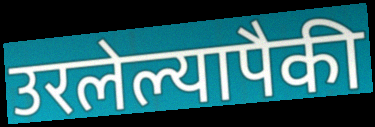
उरलेल्यापैकी